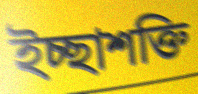
ইচ্ছাশক্তি